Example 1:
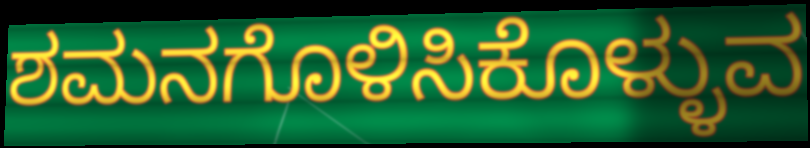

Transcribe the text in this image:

ಶಮನಗೊಳಿಸಿಕೊಳ್ಳುವ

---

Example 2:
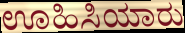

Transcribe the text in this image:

ಊಹಿಸಿಯಾರು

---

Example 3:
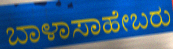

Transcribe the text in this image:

ಬಾಳಾಸಾಹೇಬರು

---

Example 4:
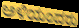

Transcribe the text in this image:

ಅಳಿಯಂದರು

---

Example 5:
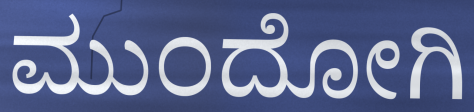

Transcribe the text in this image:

ಮುಂದೋಗಿ